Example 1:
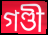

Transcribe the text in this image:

গণ্ডী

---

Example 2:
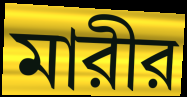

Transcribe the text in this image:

মারীর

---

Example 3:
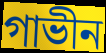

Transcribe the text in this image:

গাভীন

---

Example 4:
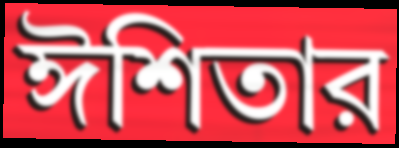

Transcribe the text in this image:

ঈশিতার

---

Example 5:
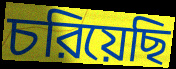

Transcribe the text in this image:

চরিয়েছি